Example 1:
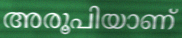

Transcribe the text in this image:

അരൂപിയാണ്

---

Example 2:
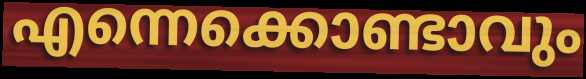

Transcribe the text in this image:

എന്നെക്കൊണ്ടാവും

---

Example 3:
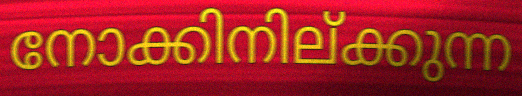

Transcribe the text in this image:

നോക്കിനില്ക്കുന്ന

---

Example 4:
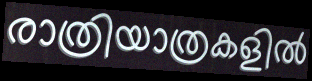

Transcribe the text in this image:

രാത്രിയാത്രകളിൽ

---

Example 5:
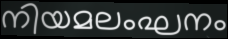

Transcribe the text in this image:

നിയമലംഘനം